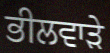
ਭੀਲਵਾੜੇ